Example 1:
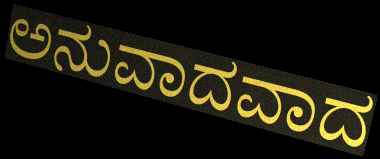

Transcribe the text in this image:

ಅನುವಾದವಾದ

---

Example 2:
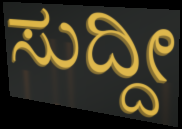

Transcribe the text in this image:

ಸುದ್ದೀ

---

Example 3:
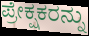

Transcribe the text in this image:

ಪ್ರೇಕ್ಷಕರನ್ನು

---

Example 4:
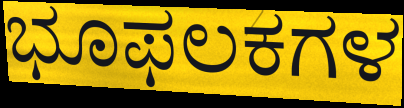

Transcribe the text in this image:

ಭೂಫಲಕಗಳ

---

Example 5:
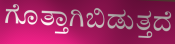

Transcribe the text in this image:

ಗೊತ್ತಾಗಿಬಿಡುತ್ತದೆ